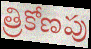
త్రికోణపు